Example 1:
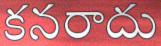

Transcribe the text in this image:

కనరాదు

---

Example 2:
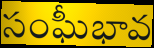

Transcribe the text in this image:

సంఘీభావ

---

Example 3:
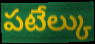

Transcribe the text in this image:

పటేల్కు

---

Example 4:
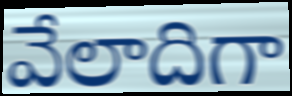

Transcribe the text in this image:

వేలాదిగా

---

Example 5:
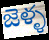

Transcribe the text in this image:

జెళ్ళ